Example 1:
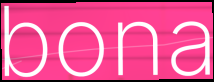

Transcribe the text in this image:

bona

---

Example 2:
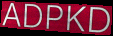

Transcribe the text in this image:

ADPKD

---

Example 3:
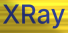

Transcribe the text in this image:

XRay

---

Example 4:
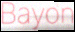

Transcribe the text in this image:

Bayon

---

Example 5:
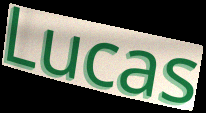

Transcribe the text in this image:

Lucas